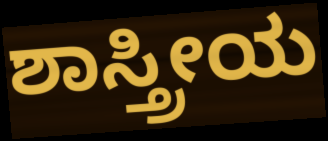
ಶಾಸ್ತ್ರೀಯ